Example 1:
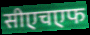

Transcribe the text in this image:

सीएचएफ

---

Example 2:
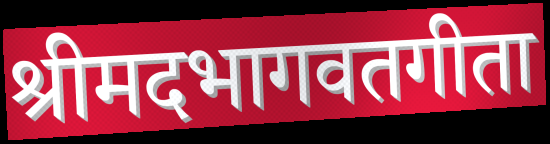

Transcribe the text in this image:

श्रीमदभागवतगीता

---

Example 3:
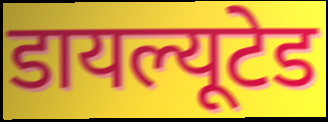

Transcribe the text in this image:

डायल्यूटेड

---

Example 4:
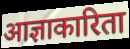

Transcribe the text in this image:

आज्ञाकारिता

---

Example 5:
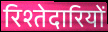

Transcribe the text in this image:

रिश्तेदारियों